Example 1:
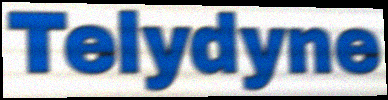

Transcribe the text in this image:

Telydyne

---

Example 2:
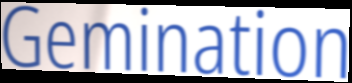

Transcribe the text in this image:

Gemination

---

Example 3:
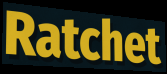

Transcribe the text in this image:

Ratchet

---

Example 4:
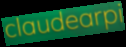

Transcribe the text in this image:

claudearpi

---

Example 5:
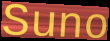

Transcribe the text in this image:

Suno